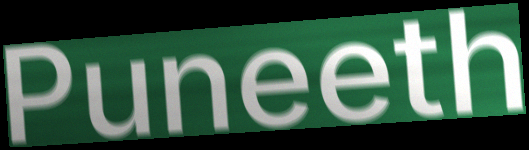
Puneeth